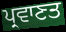
ਪ੍ਰਵਾਣਤ